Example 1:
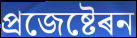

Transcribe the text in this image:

প্ৰজেষ্টেৰন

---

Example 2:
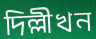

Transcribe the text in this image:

দিল্লীখন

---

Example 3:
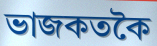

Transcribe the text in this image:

ভাজকতকৈ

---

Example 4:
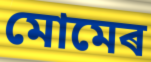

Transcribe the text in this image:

মোমেৰ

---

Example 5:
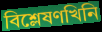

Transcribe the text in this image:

বিশ্লেষণখিনি